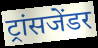
ट्रांसजेंडर